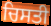
ਚਿਸਤੀ